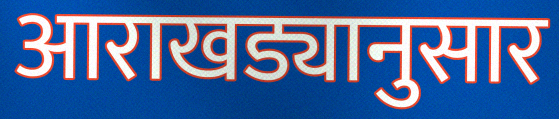
आराखड्यानुसार